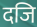
दजि